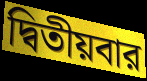
দ্বিতীয়বার